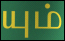
யும்